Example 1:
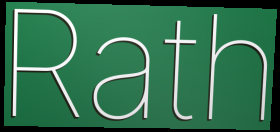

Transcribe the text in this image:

Rath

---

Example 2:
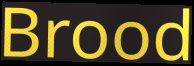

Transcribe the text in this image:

Brood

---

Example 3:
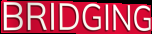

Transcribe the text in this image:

BRIDGING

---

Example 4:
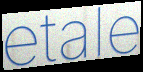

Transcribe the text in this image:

etale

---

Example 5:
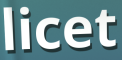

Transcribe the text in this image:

licet